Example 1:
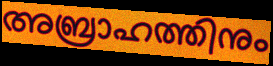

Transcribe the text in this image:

അബ്രാഹത്തിനും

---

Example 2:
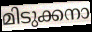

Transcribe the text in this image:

മിടുക്കനാ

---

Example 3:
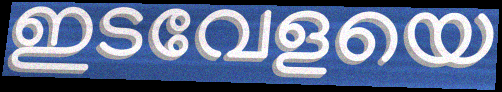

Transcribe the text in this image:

ഇടവേളയെ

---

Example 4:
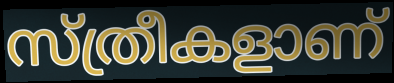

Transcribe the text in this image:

സ്ത്രീകളാണ്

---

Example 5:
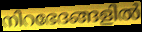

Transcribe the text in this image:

നിറഭേദങ്ങളിൽ